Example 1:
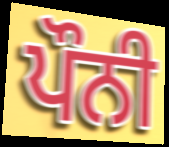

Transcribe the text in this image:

ਪੌਨੀ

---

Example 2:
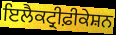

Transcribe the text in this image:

ਇਲੈਕਟ੍ਰੀਫ਼ੀਕੇਸ਼ਨ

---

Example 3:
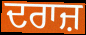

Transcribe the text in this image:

ਦਰਾਜ਼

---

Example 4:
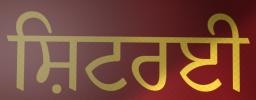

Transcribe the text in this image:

ਸ਼ਿਟਰਈ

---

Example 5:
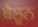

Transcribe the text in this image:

ਬੈਲੂਨ